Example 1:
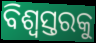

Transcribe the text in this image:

ବିଶ୍ୱସ୍ତରକୁ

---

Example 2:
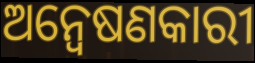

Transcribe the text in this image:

ଅନ୍ୱେଷଣକାରୀ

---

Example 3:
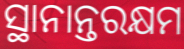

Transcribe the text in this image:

ସ୍ଥାନାନ୍ତରକ୍ଷମ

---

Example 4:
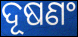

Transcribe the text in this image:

ଦୂଷଣଂ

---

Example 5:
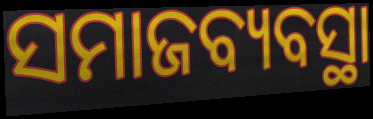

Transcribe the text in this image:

ସମାଜବ୍ୟବସ୍ଥା